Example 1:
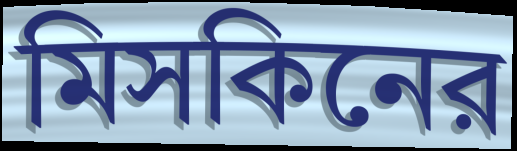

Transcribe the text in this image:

মিসকিনের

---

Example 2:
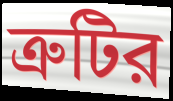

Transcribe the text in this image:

ত্রুটির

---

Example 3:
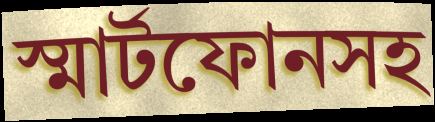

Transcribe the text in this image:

স্মার্টফোনসহ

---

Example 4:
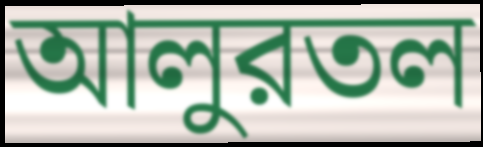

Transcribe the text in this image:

আলুরতল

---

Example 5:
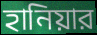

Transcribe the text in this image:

হানিয়ার